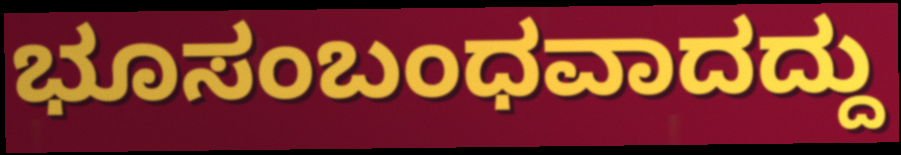
ಭೂಸಂಬಂಧವಾದದ್ದು